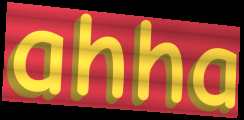
ahha